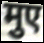
मुए